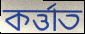
কৰ্ত্তাত